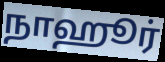
நாஹூர்